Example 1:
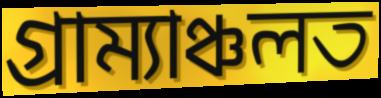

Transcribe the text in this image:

গ্ৰাম্যাঞ্চলত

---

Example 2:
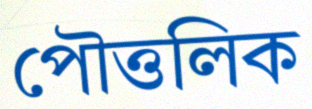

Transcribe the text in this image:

পৌত্তলিক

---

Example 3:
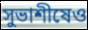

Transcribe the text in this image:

সুভাশীষেও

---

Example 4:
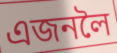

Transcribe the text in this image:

এজনলৈ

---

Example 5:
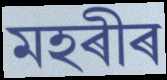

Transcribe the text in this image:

মহৰীৰ